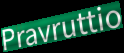
Pravruttio